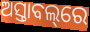
ଅସ୍ତାବଲ୍‌ରେ